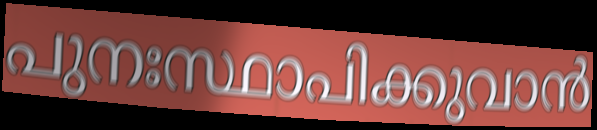
പുനഃസ്ഥാപിക്കുവാൻ